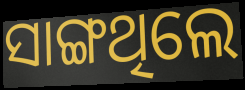
ସାଙ୍ଗଥିଲେ